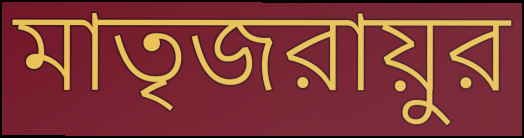
মাতৃজরায়ুর